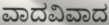
ವಾದವಿವಾದ